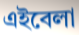
এইবেলা